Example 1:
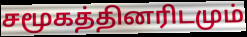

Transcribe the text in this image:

சமூகத்தினரிடமும்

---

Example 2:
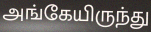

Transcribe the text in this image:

அங்கேயிருந்து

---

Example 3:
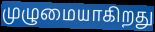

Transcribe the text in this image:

முழுமையாகிறது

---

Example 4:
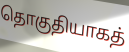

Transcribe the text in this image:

தொகுதியாகத்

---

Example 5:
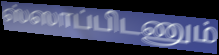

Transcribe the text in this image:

ஸ்ஸாப்பிடணும்